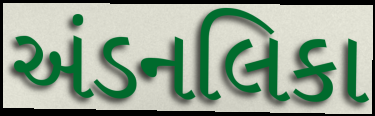
અંડનલિકા